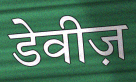
डेवीज़